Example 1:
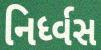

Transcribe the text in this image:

નિર્ધ્વસ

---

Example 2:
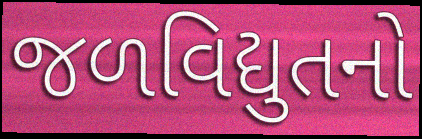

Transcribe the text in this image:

જળવિદ્યુતનો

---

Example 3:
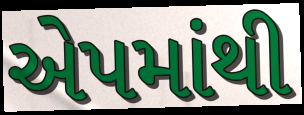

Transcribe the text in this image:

એપમાંથી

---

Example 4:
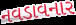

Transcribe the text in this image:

નવડાવનાર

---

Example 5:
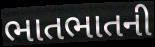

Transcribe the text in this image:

ભાતભાતની